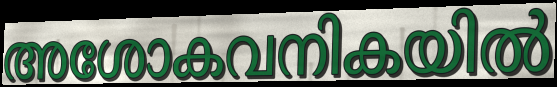
അശോകവനികയിൽ